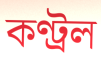
কণ্ট্ৰল